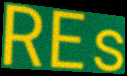
REs